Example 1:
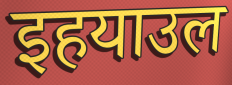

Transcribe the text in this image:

इहयाउल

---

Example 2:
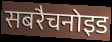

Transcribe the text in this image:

सबरैचनोइड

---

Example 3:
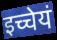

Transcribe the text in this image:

इच्चेयं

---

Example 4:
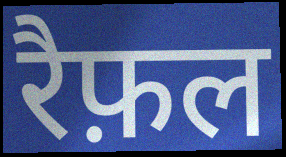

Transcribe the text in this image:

रैफ़ल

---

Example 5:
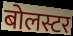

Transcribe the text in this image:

बोलस्टर